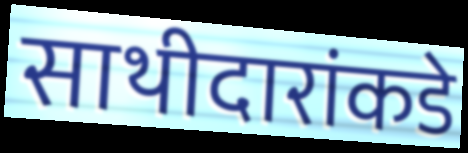
साथीदारांकडे